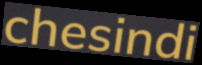
chesindi